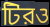
টিরও